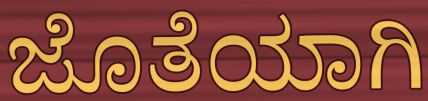
ಜೊತೆಯಾಗಿ